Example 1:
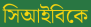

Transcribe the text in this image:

সিআইবিকে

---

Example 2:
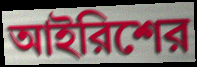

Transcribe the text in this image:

আইরিশের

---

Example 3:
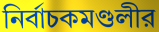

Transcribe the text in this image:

নির্বাচকমণ্ডলীর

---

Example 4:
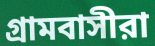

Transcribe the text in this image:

গ্রামবাসীরা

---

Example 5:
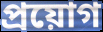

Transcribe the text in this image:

প্রয়োগ